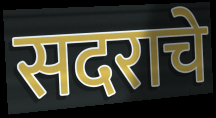
सदराचे